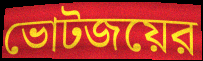
ভোটজয়ের